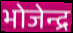
भोजेन्द्र